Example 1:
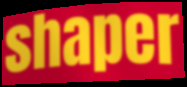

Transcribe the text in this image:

shaper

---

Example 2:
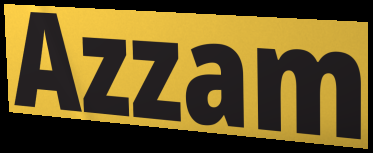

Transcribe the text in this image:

Azzam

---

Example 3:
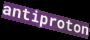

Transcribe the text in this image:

antiproton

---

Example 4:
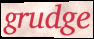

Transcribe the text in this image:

grudge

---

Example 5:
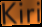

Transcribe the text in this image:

Kiri